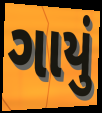
ગાયું